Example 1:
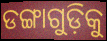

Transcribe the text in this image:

ଡଙ୍ଗାଗୁଡ଼ିକୁ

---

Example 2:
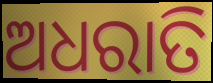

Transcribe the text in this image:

ଅଧରାତି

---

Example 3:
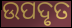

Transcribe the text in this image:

ଉପଦୃତ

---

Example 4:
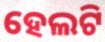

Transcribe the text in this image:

ହେଲଟି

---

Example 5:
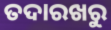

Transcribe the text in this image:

ତଦାରଖରୁ